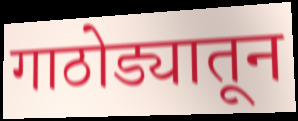
गाठोड्यातून